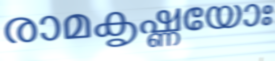
രാമകൃഷ്ണയോഃ